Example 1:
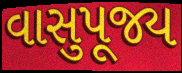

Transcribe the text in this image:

વાસુપૂજ્ય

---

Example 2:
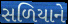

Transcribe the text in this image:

સળિયાને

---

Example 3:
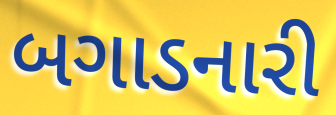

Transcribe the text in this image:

બગાડનારી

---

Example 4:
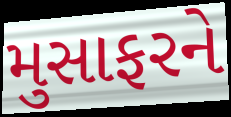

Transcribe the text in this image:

મુસાફરને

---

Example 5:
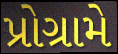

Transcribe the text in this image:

પ્રોગ્રામે